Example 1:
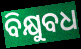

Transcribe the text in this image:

ବିକ୍ଷୁବଧ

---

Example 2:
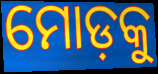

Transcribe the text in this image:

ମୋଡ଼କୁ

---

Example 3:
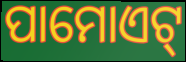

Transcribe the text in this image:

ପାମୋଏଟ୍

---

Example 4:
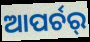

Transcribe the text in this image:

ଆପର୍ଚର୍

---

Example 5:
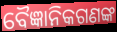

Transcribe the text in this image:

ବୈଜ୍ଞାନିକଗଣଙ୍କ